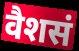
वैशसं